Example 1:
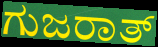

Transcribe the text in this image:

ಗುಜರಾತ್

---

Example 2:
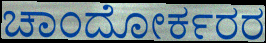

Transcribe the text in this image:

ಚಾಂದೋರ್ಕರರ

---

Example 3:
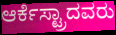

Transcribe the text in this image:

ಆರ್ಕೆಸ್ಟ್ರಾದವರು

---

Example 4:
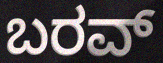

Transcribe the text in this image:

ಬರವ್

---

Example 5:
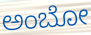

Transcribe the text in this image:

ಅಂಬೋ